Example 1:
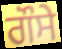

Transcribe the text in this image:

ਗੌਸੇ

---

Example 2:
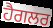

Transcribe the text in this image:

ਹੈਗਲਰ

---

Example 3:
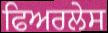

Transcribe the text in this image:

ਫਿਅਰਲੇਸ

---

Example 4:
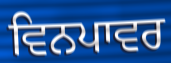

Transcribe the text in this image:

ਵਿਨਪਾਵਰ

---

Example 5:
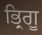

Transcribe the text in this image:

ਭ੍ਰਿਗੂ